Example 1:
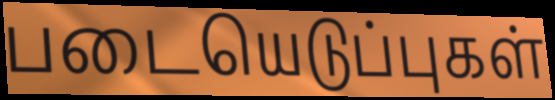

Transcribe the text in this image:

படையெடுப்புகள்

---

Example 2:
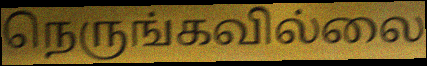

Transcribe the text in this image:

நெருங்கவில்லை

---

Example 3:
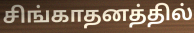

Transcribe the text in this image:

சிங்காதனத்தில்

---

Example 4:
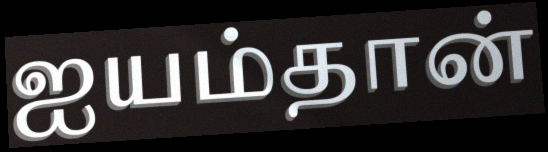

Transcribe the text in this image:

ஐயம்தான்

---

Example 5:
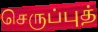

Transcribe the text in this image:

செருப்புத்